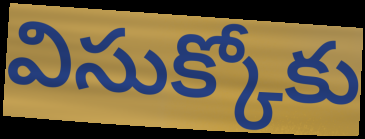
విసుక్కోకు